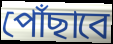
পোঁছাবে